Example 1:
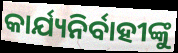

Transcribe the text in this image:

କାର୍ଯ୍ୟନିର୍ବାହୀଙ୍କୁ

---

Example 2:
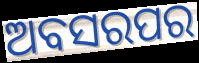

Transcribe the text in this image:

ଅବସରପର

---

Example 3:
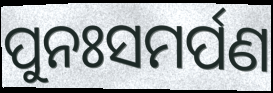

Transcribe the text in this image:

ପୁନଃସମର୍ପଣ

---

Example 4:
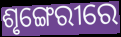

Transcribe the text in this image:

ଶୃଙ୍ଗେରୀରେ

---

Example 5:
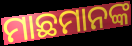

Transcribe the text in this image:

ମାଛମାନଙ୍କ